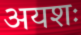
अयशः